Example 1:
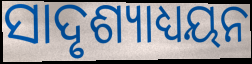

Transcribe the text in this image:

ସାଦୃଶ୍ୟାଧ୍ୟୟନ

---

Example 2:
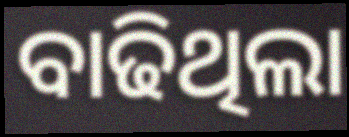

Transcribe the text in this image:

ବାଢିଥିଲା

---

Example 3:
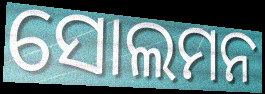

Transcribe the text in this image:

ସୋଲମନ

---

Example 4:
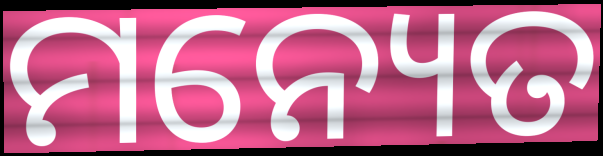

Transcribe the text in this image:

ମନ୍ୟେତ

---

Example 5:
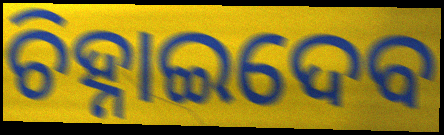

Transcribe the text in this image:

ଚିହ୍ନାଇଦେବ